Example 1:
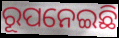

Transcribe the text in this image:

ରୂପନେଇଛି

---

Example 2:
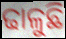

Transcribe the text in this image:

ଢାଳୁଛି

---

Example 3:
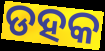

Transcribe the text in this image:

ଡହକ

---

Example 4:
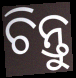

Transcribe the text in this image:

ଚିନ୍ତୁ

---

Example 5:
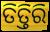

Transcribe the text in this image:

ତିତ୍ତିରି